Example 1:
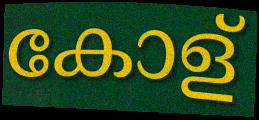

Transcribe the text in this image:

കോള്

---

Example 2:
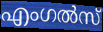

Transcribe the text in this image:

എംഗൽസ്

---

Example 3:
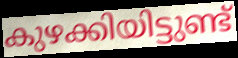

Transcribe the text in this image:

കുഴക്കിയിട്ടുണ്ട്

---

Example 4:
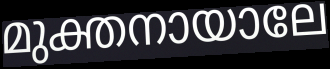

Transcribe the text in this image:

മുക്തനായാലേ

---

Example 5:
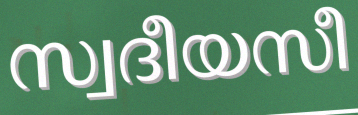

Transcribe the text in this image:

സ്വദീയസീ